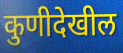
कुणीदेखील